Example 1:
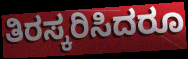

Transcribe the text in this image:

ತಿರಸ್ಕರಿಸಿದರೂ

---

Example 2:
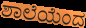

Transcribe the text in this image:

ಶಾಲೆಯೆಂದ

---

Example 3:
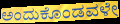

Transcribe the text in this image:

ಅಂದುಕೊಂಡವಳೇ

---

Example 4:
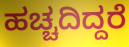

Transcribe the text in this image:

ಹಚ್ಚದಿದ್ದರೆ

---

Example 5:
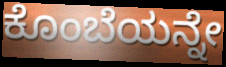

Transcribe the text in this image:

ಕೊಂಬೆಯನ್ನೇ